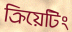
ক্রিয়েটিং